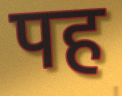
पह